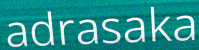
adrasaka